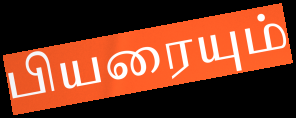
பியரையும்